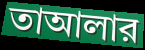
তাআলার